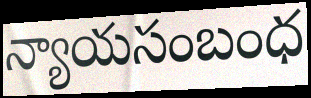
న్యాయసంబంధ